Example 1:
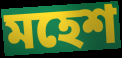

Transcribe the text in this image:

মহেশ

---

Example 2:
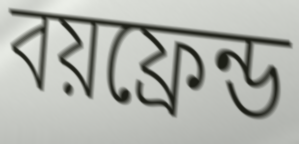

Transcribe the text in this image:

বয়ফ্রেন্ড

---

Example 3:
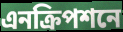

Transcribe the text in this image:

এনক্রিপশনে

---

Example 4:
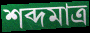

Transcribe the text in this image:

শব্দমাত্র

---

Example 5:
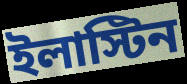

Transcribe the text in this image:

ইলাস্টিন